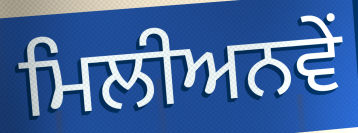
ਮਿਲੀਅਨਵੇਂ